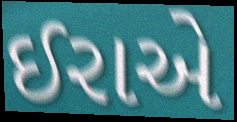
ઈરાએ